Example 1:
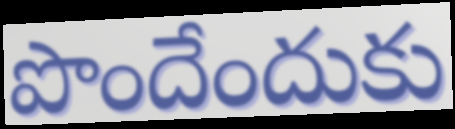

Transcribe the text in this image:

పొందేందుకు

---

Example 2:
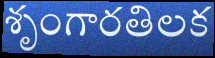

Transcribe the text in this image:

శృంగారతిలక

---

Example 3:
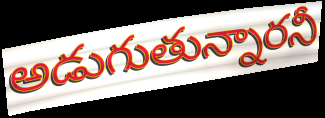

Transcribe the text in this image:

అడుగుతున్నారనీ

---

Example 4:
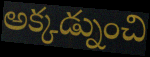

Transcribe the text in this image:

అక్కడ్నుంచి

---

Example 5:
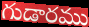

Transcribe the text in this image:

గుడారము